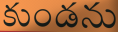
కుండను